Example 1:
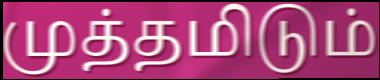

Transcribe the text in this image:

முத்தமிடும்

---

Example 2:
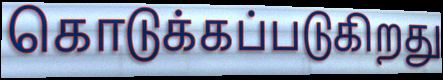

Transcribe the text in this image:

கொடுக்கப்படுகிறது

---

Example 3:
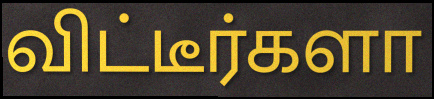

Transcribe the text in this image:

விட்டீர்களா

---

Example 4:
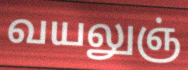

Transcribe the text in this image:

வயலுஞ்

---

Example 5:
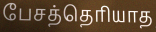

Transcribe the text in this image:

பேசத்தெரியாத